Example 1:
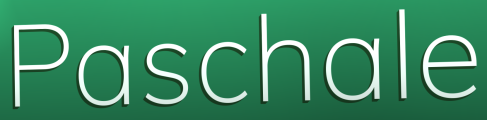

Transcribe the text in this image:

Paschale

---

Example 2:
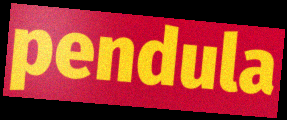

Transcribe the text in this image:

pendula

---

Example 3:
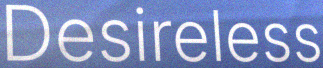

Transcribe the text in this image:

Desireless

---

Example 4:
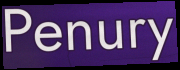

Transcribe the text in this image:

Penury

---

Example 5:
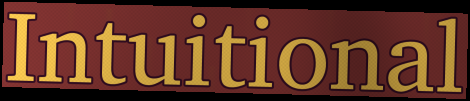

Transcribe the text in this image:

Intuitional